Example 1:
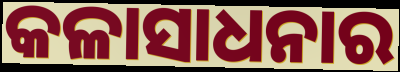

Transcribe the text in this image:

କଳାସାଧନାର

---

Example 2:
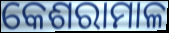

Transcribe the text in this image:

କେଶରାମାଳ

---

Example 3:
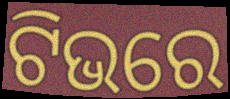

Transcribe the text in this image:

ଟିଭରେ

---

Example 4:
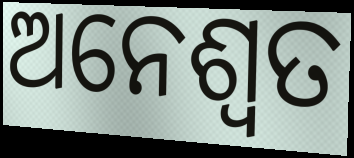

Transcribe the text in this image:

ଅନେଶ୍ଵତ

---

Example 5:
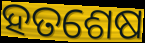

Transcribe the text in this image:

ହତଶେଷ